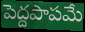
పెద్దపాపమే